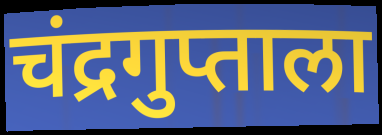
चंद्रगुप्ताला